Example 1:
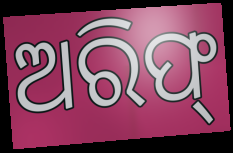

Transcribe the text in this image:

ଅରିଫ୍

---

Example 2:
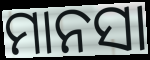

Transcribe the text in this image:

ମାନସା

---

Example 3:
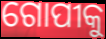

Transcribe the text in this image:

ଗୋପୀକୁ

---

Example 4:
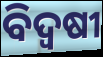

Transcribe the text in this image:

ବିଦ୍ୱଷୀ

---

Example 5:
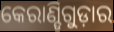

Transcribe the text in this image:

କେରାଣ୍ଡିଗୁଡ଼ାର